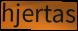
hjertas